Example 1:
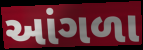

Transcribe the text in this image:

આંગળા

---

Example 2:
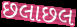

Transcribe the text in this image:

છલાછલ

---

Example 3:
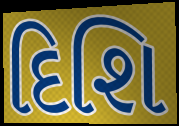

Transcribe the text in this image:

દિશિ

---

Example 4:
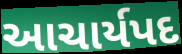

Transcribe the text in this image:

આચાર્યપદ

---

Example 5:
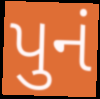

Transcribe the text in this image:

પુનં